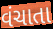
વંચાતા